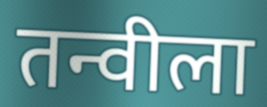
तन्वीला